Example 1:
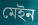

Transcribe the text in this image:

মেইন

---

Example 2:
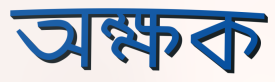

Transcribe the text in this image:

অক্ষক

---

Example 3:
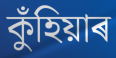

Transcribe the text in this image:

কুঁহিয়াৰ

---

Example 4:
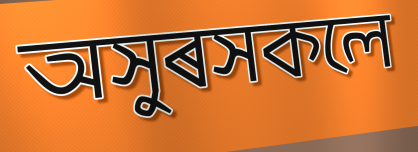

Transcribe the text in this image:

অসুৰসকলে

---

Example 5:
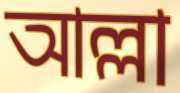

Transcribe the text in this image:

আল্লা